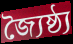
জ্যৈষ্ঠ্য